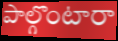
పాల్గొంటారా